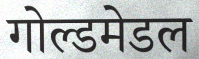
गोल्डमेडल